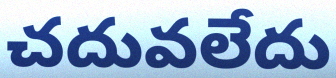
చదువలేదు